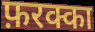
फ़रक्का